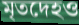
মৃতদেহও